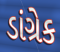
ડાંગ્રેક